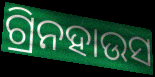
ଗ୍ରିନହାଉସ